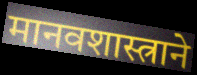
मानवशास्त्राने